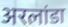
अरलांडा